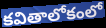
కవితాలోకంలో